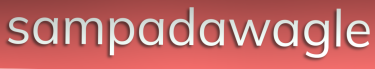
sampadawagle